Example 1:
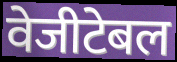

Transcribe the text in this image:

वेजीटेबल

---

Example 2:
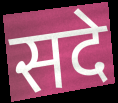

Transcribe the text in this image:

सदे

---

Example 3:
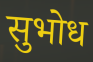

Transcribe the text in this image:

सुभोध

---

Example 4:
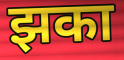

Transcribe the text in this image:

झका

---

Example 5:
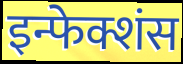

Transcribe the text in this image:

इन्फेक्शंस